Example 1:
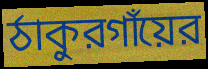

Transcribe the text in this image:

ঠাকুরগাঁয়ের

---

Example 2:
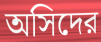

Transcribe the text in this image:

অসিদের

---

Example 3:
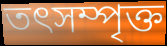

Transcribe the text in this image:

তৎসম্পৃক্ত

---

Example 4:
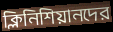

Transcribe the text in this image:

ক্লিনিশিয়ানদের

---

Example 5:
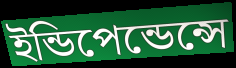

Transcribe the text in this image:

ইন্ডিপেন্ডেন্সে